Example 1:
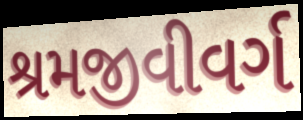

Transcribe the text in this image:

શ્રમજીવીવર્ગ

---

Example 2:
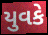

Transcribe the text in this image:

યુવકે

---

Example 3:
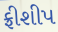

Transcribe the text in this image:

ફ્રીશીપ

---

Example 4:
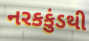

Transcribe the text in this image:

નરકકુંડથી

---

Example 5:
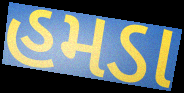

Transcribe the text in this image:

હમડા